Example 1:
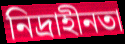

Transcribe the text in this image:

নিদ্ৰাহীনতা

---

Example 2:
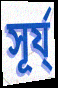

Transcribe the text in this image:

সূৰ্য্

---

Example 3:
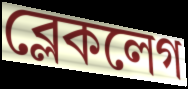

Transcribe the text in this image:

ব্লেকলেগ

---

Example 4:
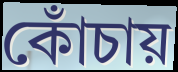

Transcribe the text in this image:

কোঁচায়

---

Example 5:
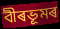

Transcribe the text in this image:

বীৰভূমৰ